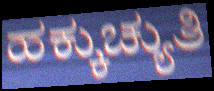
ಹಕ್ಕುಚ್ಯುತಿ